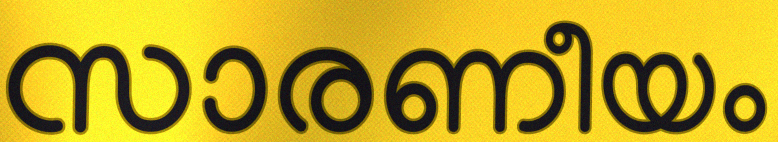
സാരണീയം